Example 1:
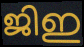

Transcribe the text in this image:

ജിഇ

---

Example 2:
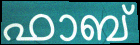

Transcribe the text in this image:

ഫാബ്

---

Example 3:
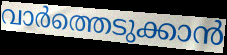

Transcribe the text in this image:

വാർത്തെടുക്കാൻ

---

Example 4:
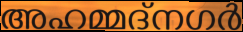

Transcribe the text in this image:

അഹമ്മദ്നഗർ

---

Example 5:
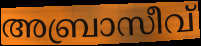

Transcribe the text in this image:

അബ്രാസീവ്